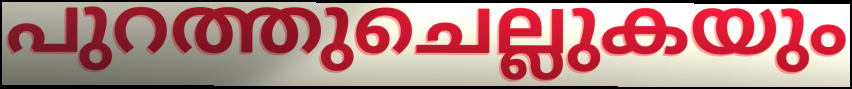
പുറത്തുചെല്ലുകയും